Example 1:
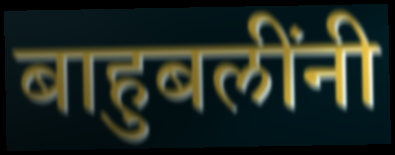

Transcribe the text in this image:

बाहुबलींनी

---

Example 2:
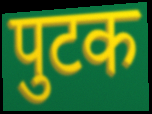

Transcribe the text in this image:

पुटक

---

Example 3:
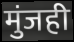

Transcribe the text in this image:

मुंजही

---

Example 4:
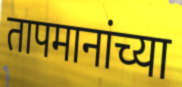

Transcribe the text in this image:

तापमानांच्या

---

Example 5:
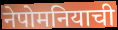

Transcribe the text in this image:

नेपोमनियाची